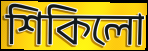
শিকিলো